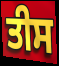
ਤੀਸ